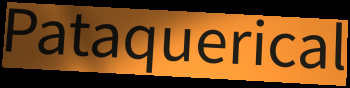
Pataquerical